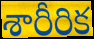
శారీరిక